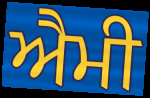
ਐਮੀ